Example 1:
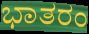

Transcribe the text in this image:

ಭಾತರಂ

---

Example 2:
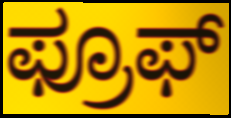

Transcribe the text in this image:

ಫ್ರೂಫ್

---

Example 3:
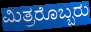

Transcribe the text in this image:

ಮಿತ್ರರೊಬ್ಬರು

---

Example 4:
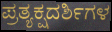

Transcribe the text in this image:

ಪ್ರತ್ಯಕ್ಷದರ್ಶಿಗಳ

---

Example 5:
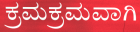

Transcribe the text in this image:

ಕ್ರಮಕ್ರಮವಾಗಿ